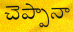
చెప్పానా